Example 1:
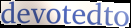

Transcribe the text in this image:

devotedto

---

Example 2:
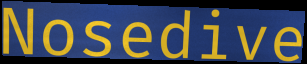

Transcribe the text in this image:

Nosedive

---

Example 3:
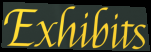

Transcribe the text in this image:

Exhibits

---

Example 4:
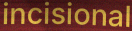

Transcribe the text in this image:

incisional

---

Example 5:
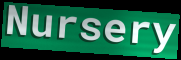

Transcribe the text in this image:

Nursery